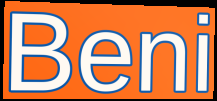
Beni